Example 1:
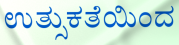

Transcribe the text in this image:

ಉತ್ಸುಕತೆಯಿಂದ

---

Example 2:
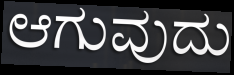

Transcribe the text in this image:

ಆಗುವುದು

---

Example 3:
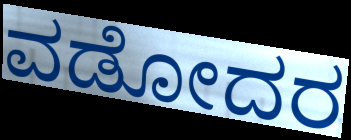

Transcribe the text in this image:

ವಡೋದರ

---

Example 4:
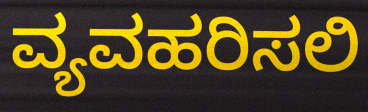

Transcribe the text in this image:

ವ್ಯವಹರಿಸಲಿ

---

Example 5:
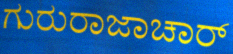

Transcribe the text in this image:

ಗುರುರಾಜಾಚಾರ್